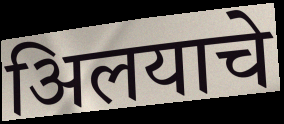
अिलयाचे